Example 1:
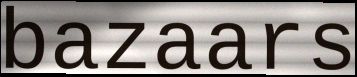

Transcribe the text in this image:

bazaars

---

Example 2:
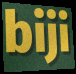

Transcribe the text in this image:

biji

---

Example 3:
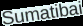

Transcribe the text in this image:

Sumatibai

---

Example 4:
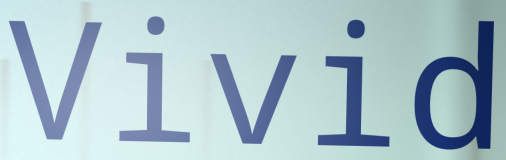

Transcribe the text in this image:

Vivid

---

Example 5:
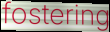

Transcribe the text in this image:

fostering